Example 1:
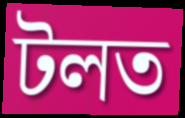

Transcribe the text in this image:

টলত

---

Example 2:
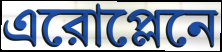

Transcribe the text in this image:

এরোপ্লেনে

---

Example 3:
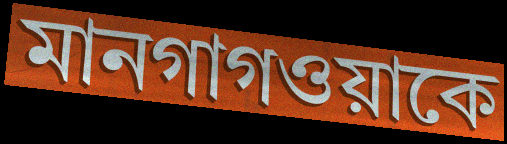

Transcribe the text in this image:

মানগাগওয়াকে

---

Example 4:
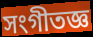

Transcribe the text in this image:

সংগীতজ্ঞ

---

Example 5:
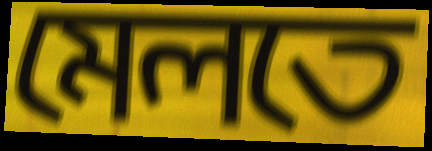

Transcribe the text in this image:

মেলতে